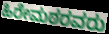
ಹಿರೇಮಠರವರು